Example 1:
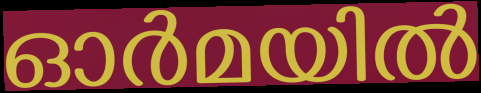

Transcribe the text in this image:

ഓർമയിൽ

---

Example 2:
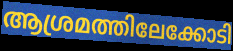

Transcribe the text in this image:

ആശ്രമത്തിലേക്കോടി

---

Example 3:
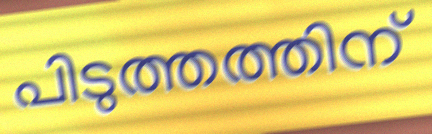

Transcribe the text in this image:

പിടുത്തത്തിന്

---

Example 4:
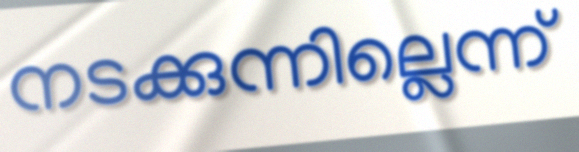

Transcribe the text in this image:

നടക്കുന്നില്ലെന്ന്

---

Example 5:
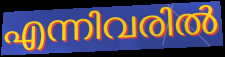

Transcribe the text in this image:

എന്നിവരിൽ